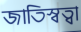
জাতিস্বত্বা